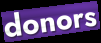
donors